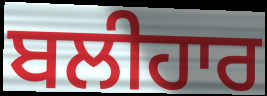
ਬਲੀਹਾਰ